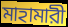
মাহামারী